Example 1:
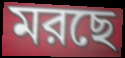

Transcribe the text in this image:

মরছে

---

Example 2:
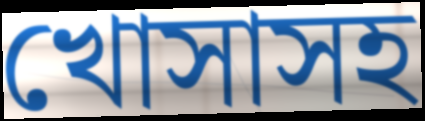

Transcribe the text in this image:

খোসাসহ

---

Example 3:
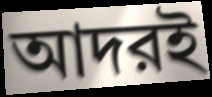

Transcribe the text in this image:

আদরই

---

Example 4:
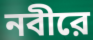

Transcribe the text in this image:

নবীরে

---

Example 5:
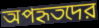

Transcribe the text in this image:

অপহৃতদের